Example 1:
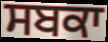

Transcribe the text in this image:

ਸਬਕਾ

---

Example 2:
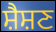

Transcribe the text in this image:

ਸ਼ੈਸ਼ਣ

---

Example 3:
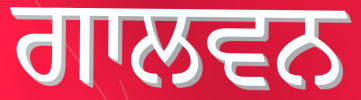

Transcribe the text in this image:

ਗਾਲਵਨ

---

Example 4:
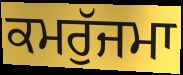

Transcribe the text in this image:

ਕਮਰੁੱਜਮਾ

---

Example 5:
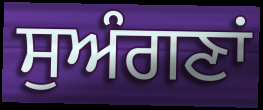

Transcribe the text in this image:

ਸੁਅੰਗਣਾਂ